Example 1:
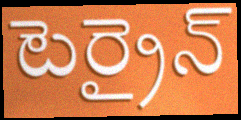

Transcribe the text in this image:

టెర్రైన్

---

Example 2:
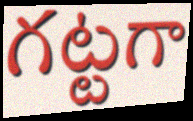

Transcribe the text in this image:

గట్టగా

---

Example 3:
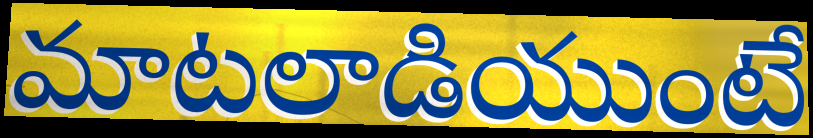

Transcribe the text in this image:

మాటలాడియుంటే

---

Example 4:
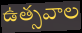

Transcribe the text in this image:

ఉత్సవాల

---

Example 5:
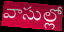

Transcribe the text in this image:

వాసుల్లో